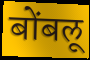
बोंबलू